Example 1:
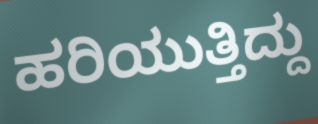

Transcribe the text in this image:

ಹರಿಯುತ್ತಿದ್ದು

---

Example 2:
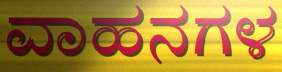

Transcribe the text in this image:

ವಾಹನಗಳ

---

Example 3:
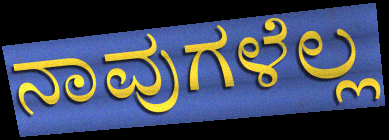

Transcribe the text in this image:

ನಾವುಗಳೆಲ್ಲ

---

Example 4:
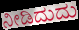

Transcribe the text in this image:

ನೀಡಿದುದು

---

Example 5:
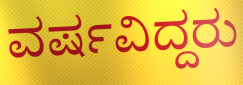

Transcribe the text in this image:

ವರ್ಷವಿದ್ದರು